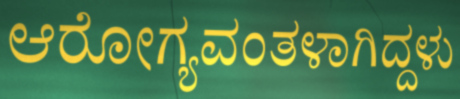
ಆರೋಗ್ಯವಂತಳಾಗಿದ್ದಳು